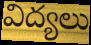
విద్యలు